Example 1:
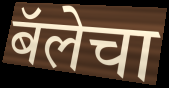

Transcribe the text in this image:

बॅलेचा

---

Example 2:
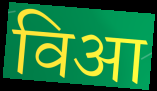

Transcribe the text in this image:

विआ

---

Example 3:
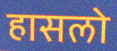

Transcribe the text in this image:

हासलो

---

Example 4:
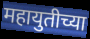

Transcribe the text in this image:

महायुतीच्या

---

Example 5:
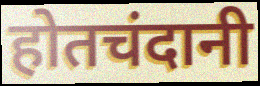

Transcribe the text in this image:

होतचंदानी